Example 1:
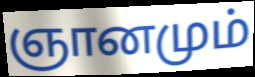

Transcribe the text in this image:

ஞானமும்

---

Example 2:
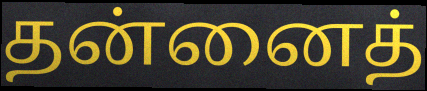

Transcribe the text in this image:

தன்னைத்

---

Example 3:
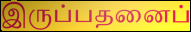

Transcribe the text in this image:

இருப்பதனைப்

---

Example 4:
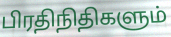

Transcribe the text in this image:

பிரதிநிதிகளும்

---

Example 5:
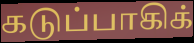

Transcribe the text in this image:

கடுப்பாகிக்